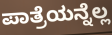
ಪಾತ್ರೆಯನ್ನೆಲ್ಲ